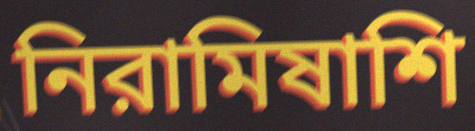
নিরামিষাশি